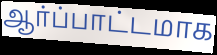
ஆர்ப்பாட்டமாக